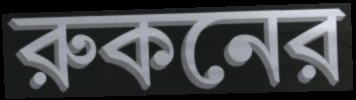
রুকনের